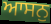
ਆਸਨੁ